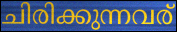
ചിരിക്കുന്നവര്